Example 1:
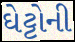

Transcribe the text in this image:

ઘેટ્ટોની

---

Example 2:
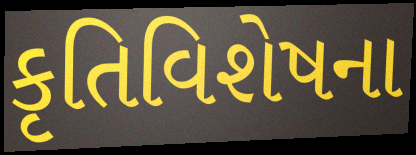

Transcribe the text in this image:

કૃતિવિશેષના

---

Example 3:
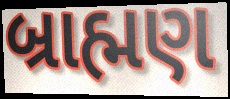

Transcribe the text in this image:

બ્રાહ્મણ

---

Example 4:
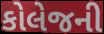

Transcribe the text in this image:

કોલેજની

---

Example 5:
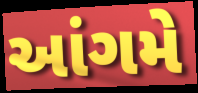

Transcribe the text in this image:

આંગમે